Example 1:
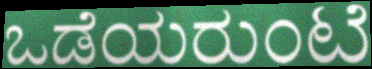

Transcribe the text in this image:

ಒಡೆಯರುಂಟೆ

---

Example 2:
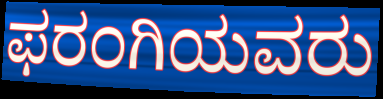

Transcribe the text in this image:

ಫರಂಗಿಯವರು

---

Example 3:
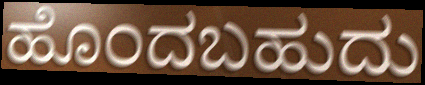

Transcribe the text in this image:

ಹೊಂದಬಹುದು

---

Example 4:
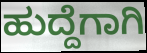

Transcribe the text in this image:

ಹುದ್ದೆಗಾಗಿ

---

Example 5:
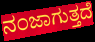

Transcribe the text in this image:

ನಂಜಾಗುತ್ತದೆ